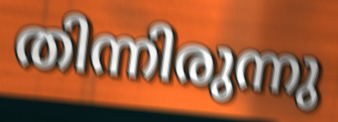
തിന്നിരുന്നു